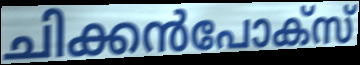
ചിക്കൻപോക്സ്